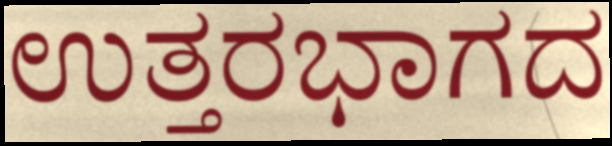
ಉತ್ತರಭಾಗದ